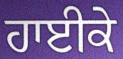
ਹਾਈਕੇ